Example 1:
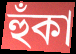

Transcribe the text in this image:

হুঁকা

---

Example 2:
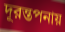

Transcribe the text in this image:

দূরন্তপনায়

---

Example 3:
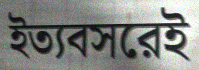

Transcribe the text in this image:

ইত্যবসরেই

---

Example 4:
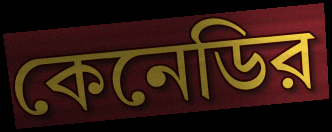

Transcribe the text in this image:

কেনেডির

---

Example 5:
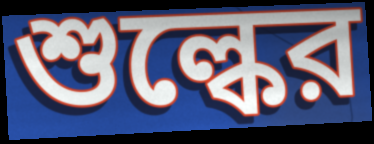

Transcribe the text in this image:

শুল্কের